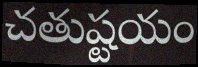
చతుష్టయం